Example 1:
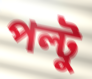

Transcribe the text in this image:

পল্টু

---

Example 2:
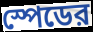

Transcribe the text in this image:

স্পেডের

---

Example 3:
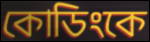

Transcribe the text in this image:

কোডিংকে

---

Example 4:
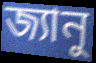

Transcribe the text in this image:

জ্যানু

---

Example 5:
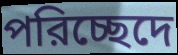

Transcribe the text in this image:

পরিচ্ছেদে